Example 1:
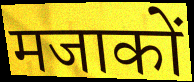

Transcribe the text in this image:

मजाकों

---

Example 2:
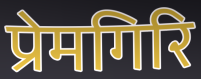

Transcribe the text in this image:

प्रेमगिरि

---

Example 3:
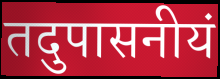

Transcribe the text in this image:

तदुपासनीयं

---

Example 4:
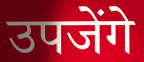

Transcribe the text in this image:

उपजेंगे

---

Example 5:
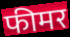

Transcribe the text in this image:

फीमर